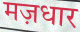
मज़धार